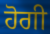
ਹੋਗੀ